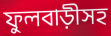
ফুলবাড়ীসহ